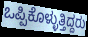
ಒಪ್ಪಿಕೊಳ್ಳುತ್ತಿದ್ದರು